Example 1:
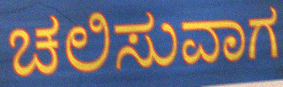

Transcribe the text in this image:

ಚಲಿಸುವಾಗ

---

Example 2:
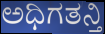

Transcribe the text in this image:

ಅಧಿಗತನ್ತಿ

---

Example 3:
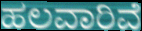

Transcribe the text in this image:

ಹಲವಾರಿವೆ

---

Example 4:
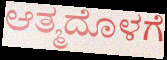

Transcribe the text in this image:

ಆತ್ಮದೊಳಗೆ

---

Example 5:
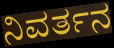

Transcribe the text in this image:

ನಿವರ್ತನ